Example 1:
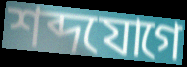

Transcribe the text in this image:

শব্দযোগে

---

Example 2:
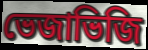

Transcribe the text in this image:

ভেজাভিজি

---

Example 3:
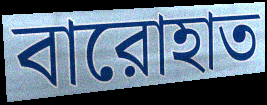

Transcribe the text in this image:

বারোহাত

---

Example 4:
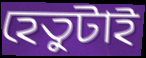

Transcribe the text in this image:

হেতুটাই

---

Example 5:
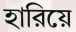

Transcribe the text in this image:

হারিয়ে